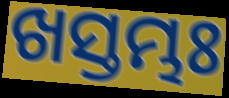
ଖସ୍ତମ୍ଭଃ